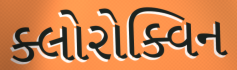
ક્લોરોક્વિન